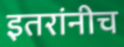
इतरांनीच